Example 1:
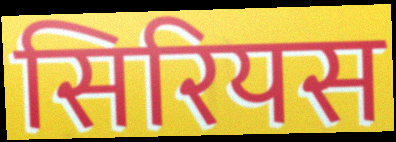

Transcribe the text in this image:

सिरियस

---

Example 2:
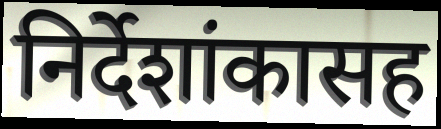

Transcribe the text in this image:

निर्देशांकासह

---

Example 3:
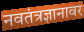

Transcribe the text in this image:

नवतंत्रज्ञानावर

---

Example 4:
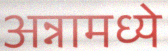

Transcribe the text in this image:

अन्नामध्ये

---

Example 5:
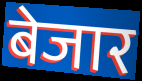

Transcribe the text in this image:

बेजार